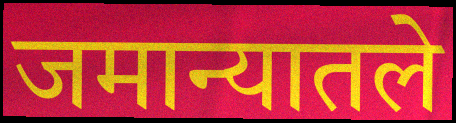
जमान्यातले